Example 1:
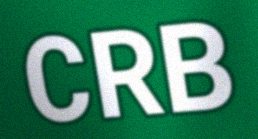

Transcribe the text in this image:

CRB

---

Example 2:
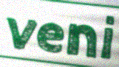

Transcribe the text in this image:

veni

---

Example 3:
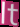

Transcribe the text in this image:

It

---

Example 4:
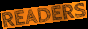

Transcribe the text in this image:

READERS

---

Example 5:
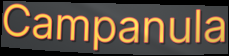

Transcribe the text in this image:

Campanula